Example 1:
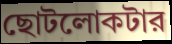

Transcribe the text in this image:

ছোটলোকটার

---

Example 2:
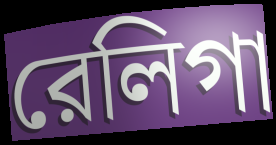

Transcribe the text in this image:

রেলিগা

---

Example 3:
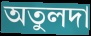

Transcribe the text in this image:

অতুলদা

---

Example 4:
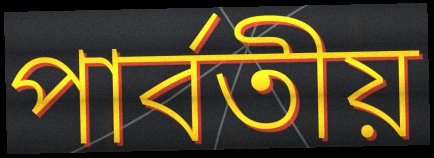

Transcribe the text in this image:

পার্বতীয়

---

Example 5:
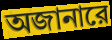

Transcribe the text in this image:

অজানারে